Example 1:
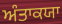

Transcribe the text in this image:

ਅੰਤਾਕਯਾ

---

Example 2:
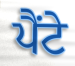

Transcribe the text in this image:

ਪੈਂਟੇ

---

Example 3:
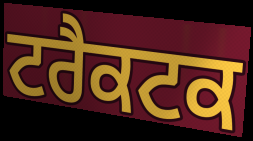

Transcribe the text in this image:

ਟਰੈਕਟਕ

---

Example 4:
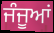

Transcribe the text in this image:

ਜੰਜੂਆਂ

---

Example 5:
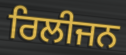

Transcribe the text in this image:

ਰਿਲੀਜਨ